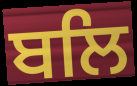
ਬਲਿ